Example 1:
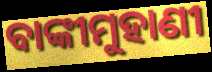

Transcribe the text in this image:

ବାଙ୍କୀମୁହାଣୀ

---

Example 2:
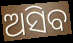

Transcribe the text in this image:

ଅସିବ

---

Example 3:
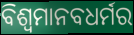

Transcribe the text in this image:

ବିଶ୍ବମାନବଧର୍ମର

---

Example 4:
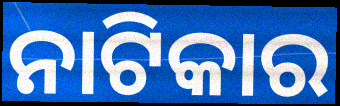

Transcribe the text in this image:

ନାଟିକାର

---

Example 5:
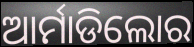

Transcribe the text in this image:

ଆର୍ମାଡିଲୋର